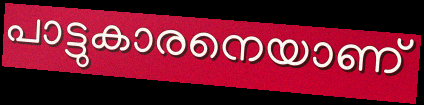
പാട്ടുകാരനെയാണ്